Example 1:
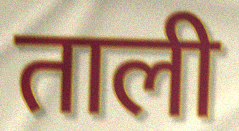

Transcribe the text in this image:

ताली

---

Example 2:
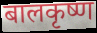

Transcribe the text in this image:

बालकृष्ण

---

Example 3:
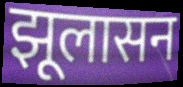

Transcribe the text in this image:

झूलासन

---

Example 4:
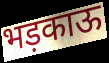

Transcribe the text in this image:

भड़काऊ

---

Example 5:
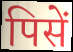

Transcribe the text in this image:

पिसें